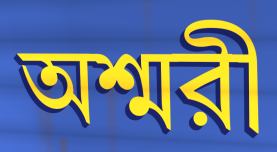
অশ্মরী